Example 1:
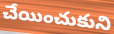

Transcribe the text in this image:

చేయించుకుని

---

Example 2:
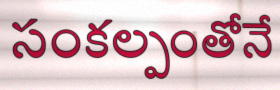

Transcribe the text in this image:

సంకల్పంతోనే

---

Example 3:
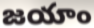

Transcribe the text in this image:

జయాం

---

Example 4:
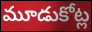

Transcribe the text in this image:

మూడుకోట్ల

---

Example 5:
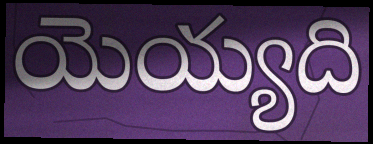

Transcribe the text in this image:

యెయ్యది